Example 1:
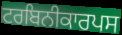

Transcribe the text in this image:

ਟਰਬਿਨੀਕਾਰਪਸ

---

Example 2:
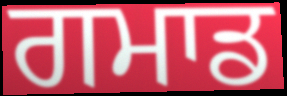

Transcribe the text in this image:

ਗਮਾਡ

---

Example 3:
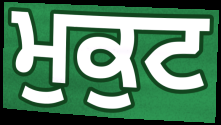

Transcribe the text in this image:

ਮੁਕੁਟ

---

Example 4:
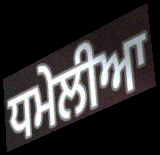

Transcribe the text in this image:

ਧਮੇਲੀਆ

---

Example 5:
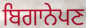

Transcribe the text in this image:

ਬਿਗਾਨੇਪਣ